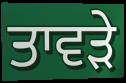
ਤਾਵੜੇ